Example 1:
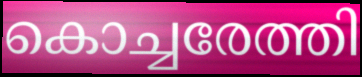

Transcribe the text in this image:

കൊച്ചരേത്തി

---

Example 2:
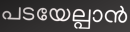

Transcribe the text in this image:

പടയേല്പാൻ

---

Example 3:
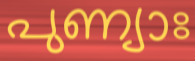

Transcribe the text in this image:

പുണ്യാഃ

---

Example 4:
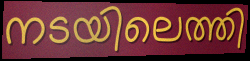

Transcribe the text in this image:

നടയിലെത്തി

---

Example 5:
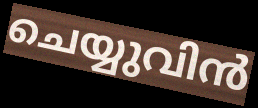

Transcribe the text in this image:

ചെയ്യുവിൻ